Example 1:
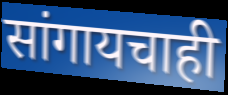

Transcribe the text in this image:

सांगायचाही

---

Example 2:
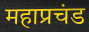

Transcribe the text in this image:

महाप्रचंड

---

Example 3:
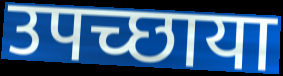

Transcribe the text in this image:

उपच्छाया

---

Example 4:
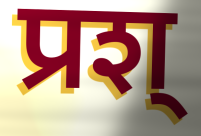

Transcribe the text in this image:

प्रश्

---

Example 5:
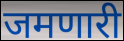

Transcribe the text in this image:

जमणारी